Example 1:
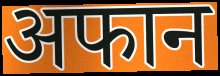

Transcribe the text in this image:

अफान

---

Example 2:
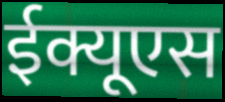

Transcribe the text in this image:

ईक्यूएस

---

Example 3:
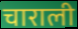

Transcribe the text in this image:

चाराली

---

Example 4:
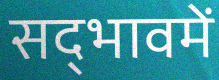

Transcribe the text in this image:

सद्भावमें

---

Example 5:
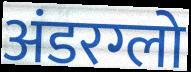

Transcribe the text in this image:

अंडरग्लो